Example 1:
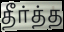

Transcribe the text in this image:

தீர்த்த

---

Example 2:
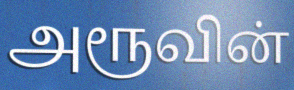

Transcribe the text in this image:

அரூவின்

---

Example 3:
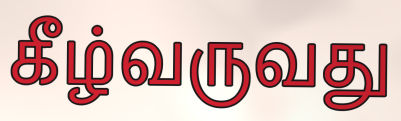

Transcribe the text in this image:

கீழ்வருவது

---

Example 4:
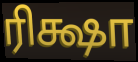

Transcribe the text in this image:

ரிக்ஷா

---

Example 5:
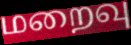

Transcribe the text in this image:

மறைவு